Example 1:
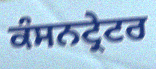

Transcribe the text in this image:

ਕੰਸਨਟ੍ਰੇਟਰ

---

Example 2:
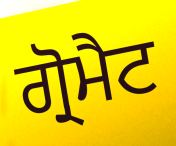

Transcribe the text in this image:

ਗ੍ਰੋਮੈਟ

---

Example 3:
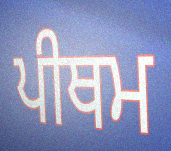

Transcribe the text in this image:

ਪੀਥਮ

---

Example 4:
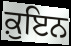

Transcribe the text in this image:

ਕ਼ੁਇਨ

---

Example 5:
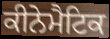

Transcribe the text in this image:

ਕੀਨੇਮੈਟਿਕ